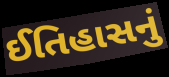
ઈતિહાસનું